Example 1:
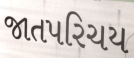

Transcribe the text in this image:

જાતપરિચય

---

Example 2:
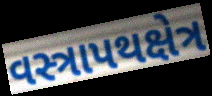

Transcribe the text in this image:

વસ્ત્રાપથક્ષેત્ર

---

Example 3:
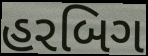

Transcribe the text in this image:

હરબિગ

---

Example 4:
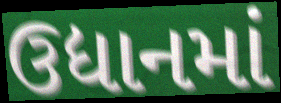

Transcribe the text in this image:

ઉદ્યાનમાં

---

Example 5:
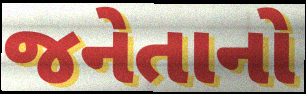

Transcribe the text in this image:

જનેતાનો